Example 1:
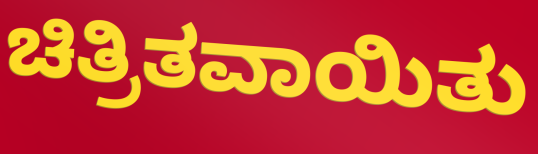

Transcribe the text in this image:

ಚಿತ್ರಿತವಾಯಿತು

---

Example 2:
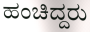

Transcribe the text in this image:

ಹಂಚಿದ್ದರು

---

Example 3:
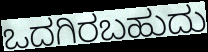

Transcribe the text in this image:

ಒದಗಿರಬಹುದು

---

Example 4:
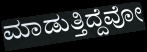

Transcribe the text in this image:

ಮಾಡುತ್ತಿದ್ದೆವೋ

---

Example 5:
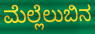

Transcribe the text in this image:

ಮೆಲ್ಲೆಲುಬಿನ